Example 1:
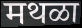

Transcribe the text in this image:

मथळा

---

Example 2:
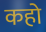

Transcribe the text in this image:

कहो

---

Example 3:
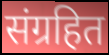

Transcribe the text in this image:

संग्रहित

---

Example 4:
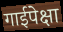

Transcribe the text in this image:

गाईपेक्षा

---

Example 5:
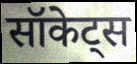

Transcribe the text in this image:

सॉकेट्स